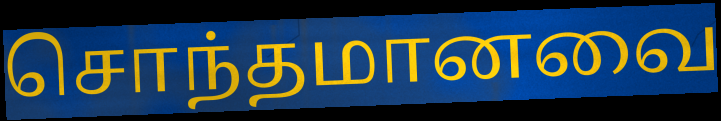
சொந்தமானவை